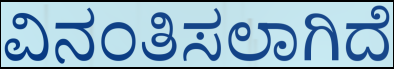
ವಿನಂತಿಸಲಾಗಿದೆ